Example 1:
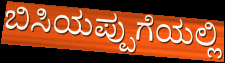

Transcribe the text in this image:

ಬಿಸಿಯಪ್ಪುಗೆಯಲ್ಲಿ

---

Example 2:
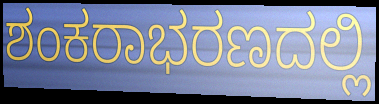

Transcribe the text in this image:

ಶಂಕರಾಭರಣದಲ್ಲಿ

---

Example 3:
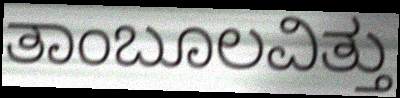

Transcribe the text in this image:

ತಾಂಬೂಲವಿತ್ತು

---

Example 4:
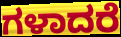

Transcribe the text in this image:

ಗಳಾದರೆ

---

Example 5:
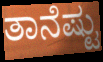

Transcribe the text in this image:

ತಾನೆಷ್ಟು